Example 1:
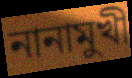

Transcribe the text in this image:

নানামুখী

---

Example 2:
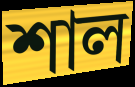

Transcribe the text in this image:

শাল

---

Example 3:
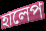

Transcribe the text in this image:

হালেপ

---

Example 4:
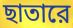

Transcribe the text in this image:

ছাতারে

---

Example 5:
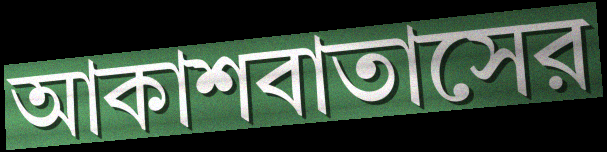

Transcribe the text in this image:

আকাশবাতাসের